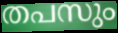
തപസും